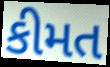
કીમત